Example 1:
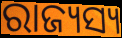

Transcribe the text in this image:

ରାଜ୍ୟସ୍ୟ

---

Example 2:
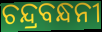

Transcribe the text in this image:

ଚନ୍ଦ୍ରବନ୍ଧନୀ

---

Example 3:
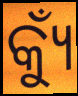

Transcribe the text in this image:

କ୍ୟୁଁ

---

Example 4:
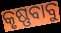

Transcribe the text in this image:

କୃଷ୍ଣବାବୁ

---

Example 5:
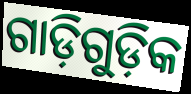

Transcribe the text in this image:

ଗାଡ଼ିଗୁଡ଼ିକ